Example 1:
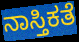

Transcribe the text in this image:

ನಾಸ್ತಿಕತೆ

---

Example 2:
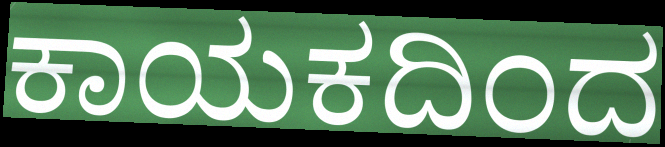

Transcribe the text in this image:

ಕಾಯಕದಿಂದ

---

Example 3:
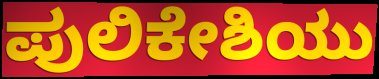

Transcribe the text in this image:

ಪುಲಿಕೇಶಿಯು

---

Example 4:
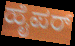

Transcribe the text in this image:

ಹೈಪರ್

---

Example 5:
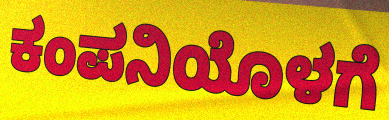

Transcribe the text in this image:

ಕಂಪನಿಯೊಳಗೆ